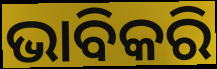
ଭାବିକରି